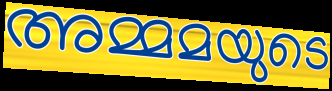
അമ്മമയുടെ